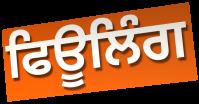
ਫਿਊਲਿੰਗ